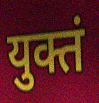
युक्तं